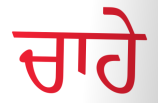
ਚਾਹੇ